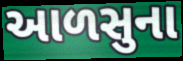
આળસુના